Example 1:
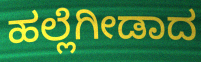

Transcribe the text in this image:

ಹಲ್ಲೆಗೀಡಾದ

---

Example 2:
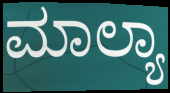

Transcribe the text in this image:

ಮಾಲ್ಯಾ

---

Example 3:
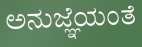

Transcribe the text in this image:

ಅನುಜ್ಞೆಯಂತೆ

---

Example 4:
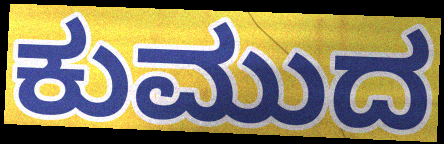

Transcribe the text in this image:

ಕುಮುದ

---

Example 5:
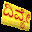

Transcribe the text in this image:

ದಿವ್ಯೇ